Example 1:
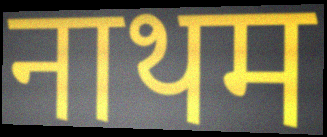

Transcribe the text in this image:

नाथम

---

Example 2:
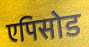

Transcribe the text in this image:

एपिसोड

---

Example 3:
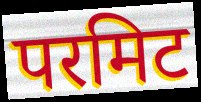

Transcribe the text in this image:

परमिट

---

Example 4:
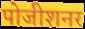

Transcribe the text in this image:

पोजीशनर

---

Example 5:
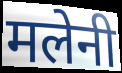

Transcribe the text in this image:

मलेनी